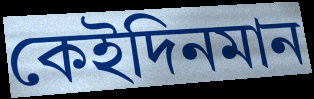
কেইদিনমান